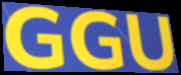
GGU